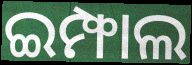
ଇମ୍ଫାଲ